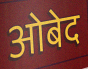
ओबेद